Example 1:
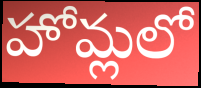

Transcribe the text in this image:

హోమ్లలో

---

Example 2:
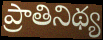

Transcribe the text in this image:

ప్రాతినిథ్య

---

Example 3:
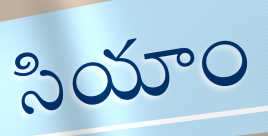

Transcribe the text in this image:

సియాం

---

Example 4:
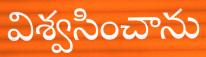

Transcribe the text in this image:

విశ్వసించాను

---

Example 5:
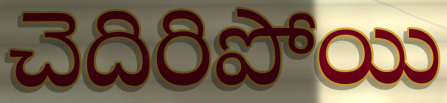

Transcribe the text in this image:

చెదిరిపోయి